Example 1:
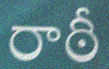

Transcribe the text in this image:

రాఠీ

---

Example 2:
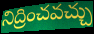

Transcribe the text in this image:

నిద్రించవచ్చు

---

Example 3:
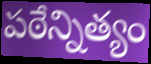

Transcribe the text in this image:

పఠేన్నిత్యం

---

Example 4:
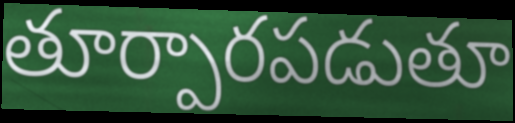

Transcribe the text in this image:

తూర్పారపడుతూ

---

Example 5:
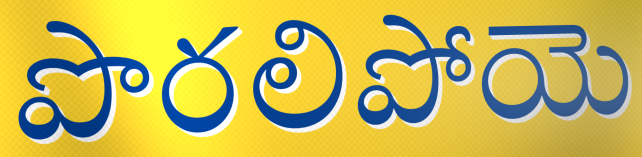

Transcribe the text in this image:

పొరలిపోయె